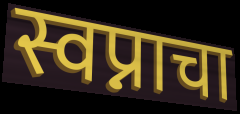
स्वप्नाचा